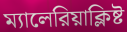
ম্যালেরিয়াক্লিষ্ট